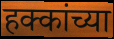
हक्कांच्या